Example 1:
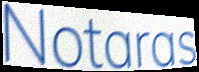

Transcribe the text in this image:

Notaras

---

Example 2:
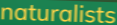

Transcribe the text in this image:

naturalists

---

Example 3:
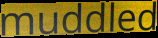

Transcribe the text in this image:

muddled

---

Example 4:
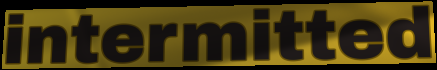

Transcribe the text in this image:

intermitted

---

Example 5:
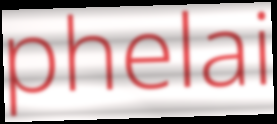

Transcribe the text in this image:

phelai